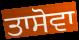
ਤਾਸੋਵਾ